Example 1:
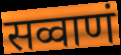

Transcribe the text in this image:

सव्वाणं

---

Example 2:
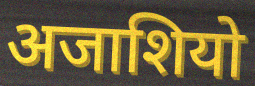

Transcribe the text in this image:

अजाशियो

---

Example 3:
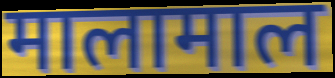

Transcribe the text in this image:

मालामाल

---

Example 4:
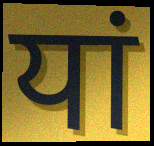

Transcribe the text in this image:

यां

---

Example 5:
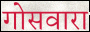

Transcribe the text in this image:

गोसवारा